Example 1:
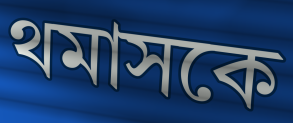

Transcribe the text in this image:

থমাসকে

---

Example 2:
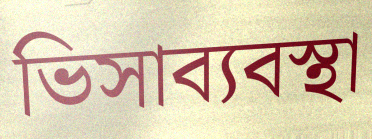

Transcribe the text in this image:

ভিসাব্যবস্থা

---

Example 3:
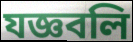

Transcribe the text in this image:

যজ্ঞবলি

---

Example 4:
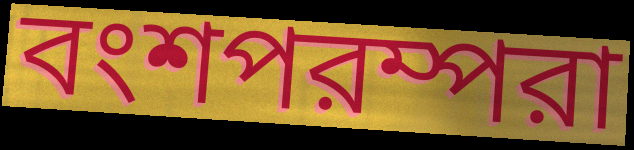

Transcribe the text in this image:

বংশপরম্পরা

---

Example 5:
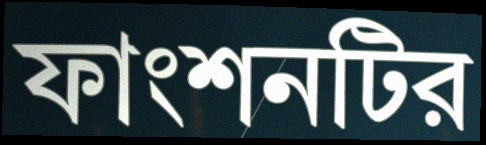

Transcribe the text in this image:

ফাংশনটির